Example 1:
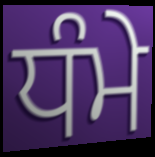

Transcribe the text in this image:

ਧੰਮੇ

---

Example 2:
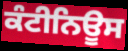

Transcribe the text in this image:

ਕੰਟੀਨਿਊਸ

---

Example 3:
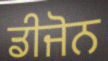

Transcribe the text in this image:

ਡੀਜੋਨ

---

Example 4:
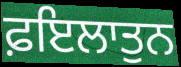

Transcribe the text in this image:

ਫ਼ਇਲਾਤੁਨ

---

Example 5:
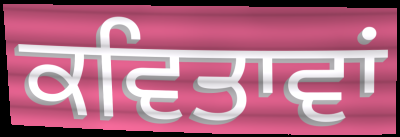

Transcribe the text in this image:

ਕਵਿਤਾਵਾਂ